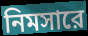
নিমসারে